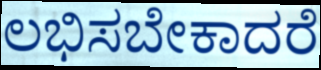
ಲಭಿಸಬೇಕಾದರೆ